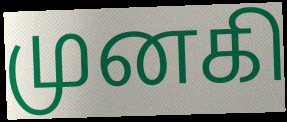
முனகி